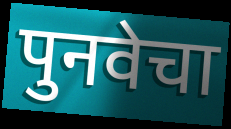
पुनवेचा